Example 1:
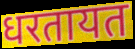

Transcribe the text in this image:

धरतायत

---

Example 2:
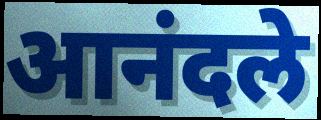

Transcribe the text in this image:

आनंदले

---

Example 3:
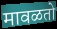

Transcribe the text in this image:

मावळतो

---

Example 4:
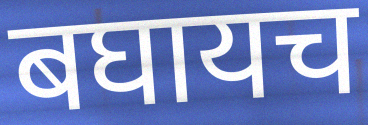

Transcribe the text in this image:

बघायच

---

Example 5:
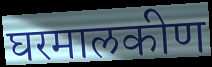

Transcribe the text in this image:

घरमालकीण